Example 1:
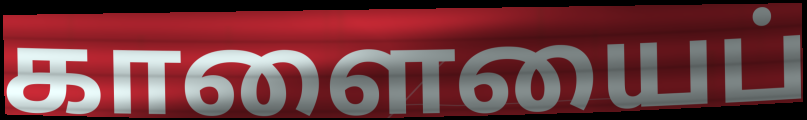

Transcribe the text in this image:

காளையைப்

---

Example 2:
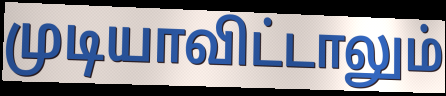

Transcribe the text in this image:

முடியாவிட்டாலும்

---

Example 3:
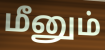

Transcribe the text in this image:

மீனும்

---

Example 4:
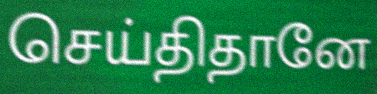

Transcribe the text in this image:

செய்திதானே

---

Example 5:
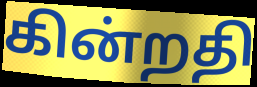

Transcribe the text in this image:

கின்றதி